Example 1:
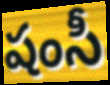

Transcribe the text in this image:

షంసీ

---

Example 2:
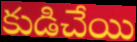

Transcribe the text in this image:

కుడిచేయి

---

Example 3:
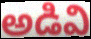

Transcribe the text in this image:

అడివి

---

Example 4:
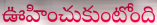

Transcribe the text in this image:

ఊహించుకుంటోంది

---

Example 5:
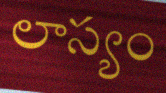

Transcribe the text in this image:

లాస్యం